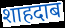
शाहदाब